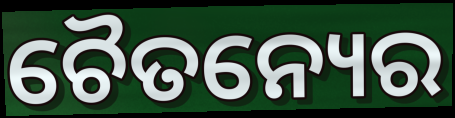
ଚୈତନ୍ୟେର